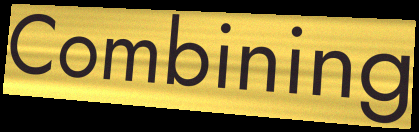
Combining